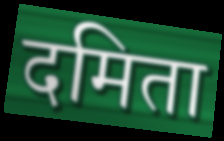
दमिता